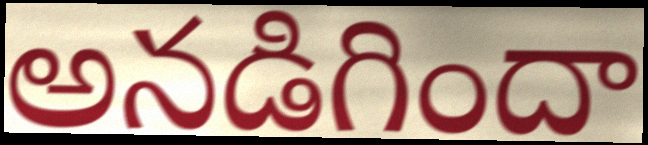
అనడిగిందా